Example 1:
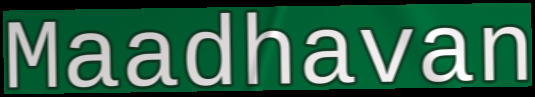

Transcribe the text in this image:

Maadhavan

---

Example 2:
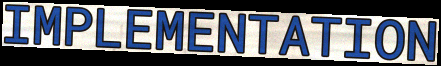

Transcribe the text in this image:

IMPLEMENTATION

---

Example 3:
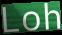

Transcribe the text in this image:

Loh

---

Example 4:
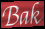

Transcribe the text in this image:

Bak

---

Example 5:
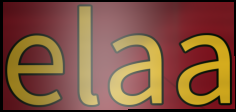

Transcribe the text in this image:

elaa